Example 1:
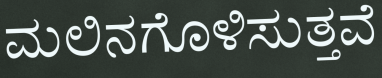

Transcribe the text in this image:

ಮಲಿನಗೊಳಿಸುತ್ತವೆ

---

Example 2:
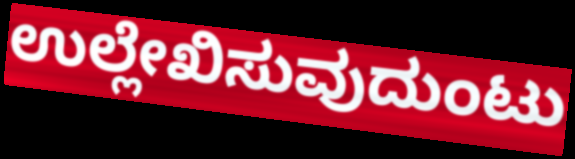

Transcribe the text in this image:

ಉಲ್ಲೇಖಿಸುವುದುಂಟು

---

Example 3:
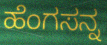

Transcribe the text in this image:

ಹೆಂಗಸನ್ನ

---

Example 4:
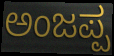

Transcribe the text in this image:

ಅಂಜಪ್ಪ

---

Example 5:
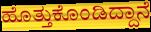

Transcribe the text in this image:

ಹೊತ್ತುಕೊಂಡಿದ್ದಾನೆ